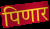
पिणार